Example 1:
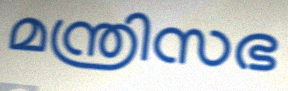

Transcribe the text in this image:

മന്ത്രിസഭ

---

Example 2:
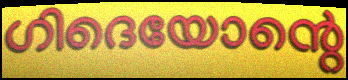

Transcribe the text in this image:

ഗിദെയോന്റെ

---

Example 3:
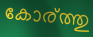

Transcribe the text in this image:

കോര്ത്തു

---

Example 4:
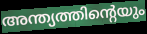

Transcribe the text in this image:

അന്ത്യത്തിന്റെയും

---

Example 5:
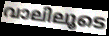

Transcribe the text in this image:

വാലിലൂടെ